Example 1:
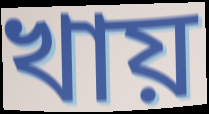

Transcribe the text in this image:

খায়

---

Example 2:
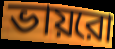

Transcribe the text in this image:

ভায়রো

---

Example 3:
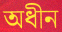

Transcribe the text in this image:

অধীন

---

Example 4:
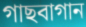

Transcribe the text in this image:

গাছবাগান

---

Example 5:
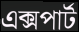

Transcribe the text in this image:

এক্সপার্ট